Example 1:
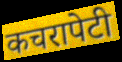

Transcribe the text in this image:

कचरापेटी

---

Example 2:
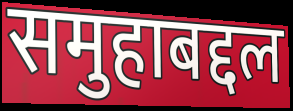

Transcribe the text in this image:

समुहाबद्दल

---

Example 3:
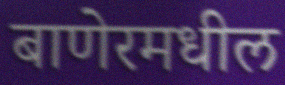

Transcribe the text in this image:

बाणेरमधील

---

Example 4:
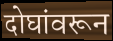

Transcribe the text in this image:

दोघांवरून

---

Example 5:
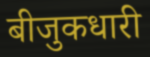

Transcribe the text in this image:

बीजुकधारी